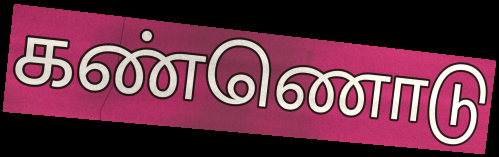
கண்ணொடு